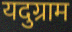
यदुग्राम